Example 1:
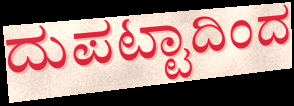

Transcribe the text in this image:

ದುಪಟ್ಟಾದಿಂದ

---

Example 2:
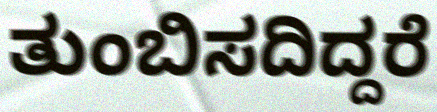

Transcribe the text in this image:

ತುಂಬಿಸದಿದ್ದರೆ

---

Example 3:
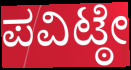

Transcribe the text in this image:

ಪವಿಟ್ಠೇ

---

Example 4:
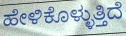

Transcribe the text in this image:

ಹೇಳಿಕೊಳ್ಳುತ್ತಿದೆ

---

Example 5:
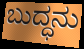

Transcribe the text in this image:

ಬುದ್ಧನು